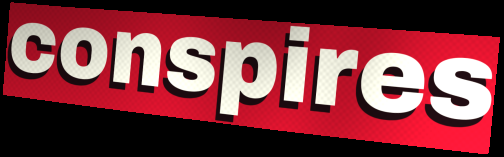
conspires